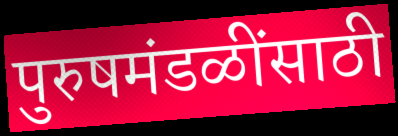
पुरुषमंडळींसाठी